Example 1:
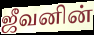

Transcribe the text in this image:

ஜீவனின்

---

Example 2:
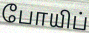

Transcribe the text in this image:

போயிப்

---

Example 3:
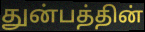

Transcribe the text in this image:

துன்பத்தின்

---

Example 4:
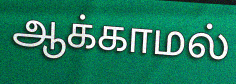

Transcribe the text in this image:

ஆக்காமல்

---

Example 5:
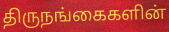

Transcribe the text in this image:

திருநங்கைகளின்